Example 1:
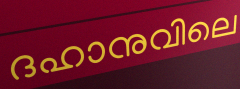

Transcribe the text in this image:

ദഹാനുവിലെ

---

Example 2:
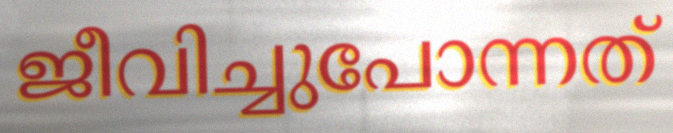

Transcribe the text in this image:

ജീവിച്ചുപോന്നത്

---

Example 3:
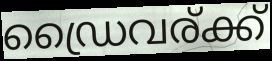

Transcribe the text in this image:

ഡ്രൈവര്ക്ക്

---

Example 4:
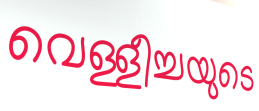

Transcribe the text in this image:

വെള്ളീച്ചയുടെ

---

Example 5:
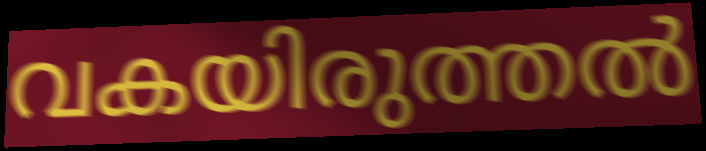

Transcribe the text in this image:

വകയിരുത്തൽ